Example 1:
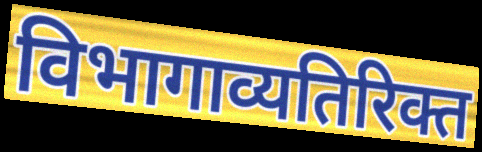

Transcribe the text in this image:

विभागाव्यतिरिक्त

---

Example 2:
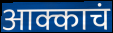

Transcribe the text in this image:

आक्काचं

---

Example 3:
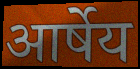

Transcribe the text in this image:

आर्षेय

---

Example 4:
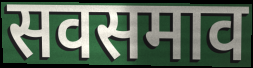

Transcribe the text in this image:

सवसमाव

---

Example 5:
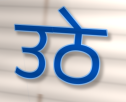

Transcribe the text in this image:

उठे